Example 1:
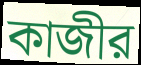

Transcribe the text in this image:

কাজীর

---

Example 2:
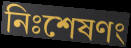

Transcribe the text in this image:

নিঃশেষণং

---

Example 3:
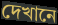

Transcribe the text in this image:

দেখানে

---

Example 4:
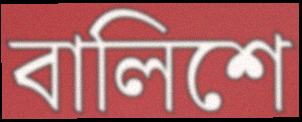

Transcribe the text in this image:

বালিশে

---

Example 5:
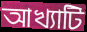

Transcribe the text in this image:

আখ্যাটি